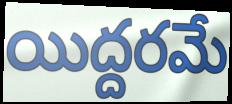
యిద్దరమే